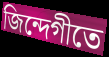
জিন্দেগীতে